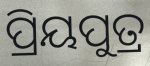
ପ୍ରିୟପୁତ୍ର